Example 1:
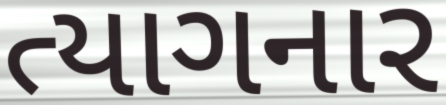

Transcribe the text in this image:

ત્યાગનાર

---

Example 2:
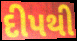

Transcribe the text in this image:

દીપથી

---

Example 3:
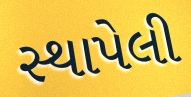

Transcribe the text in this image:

સ્‍થાપેલી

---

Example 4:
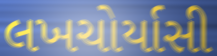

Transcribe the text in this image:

લખચોર્યાસી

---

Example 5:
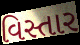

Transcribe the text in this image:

વિસ્તાર